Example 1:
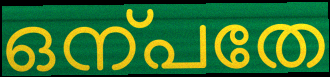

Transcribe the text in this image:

ഒന്പതേ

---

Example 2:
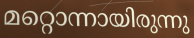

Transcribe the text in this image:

മറ്റൊന്നായിരുന്നു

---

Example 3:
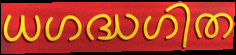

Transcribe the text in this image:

ധഗദ്ധഗിത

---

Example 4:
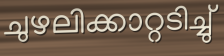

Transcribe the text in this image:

ചുഴലിക്കാറ്റടിച്ചു്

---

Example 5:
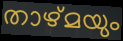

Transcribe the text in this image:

താഴ്മയും